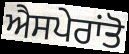
ਐਸਪੇਰਾਂਤੋ